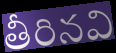
తీరినవి